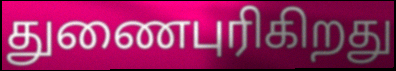
துணைபுரிகிறது